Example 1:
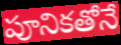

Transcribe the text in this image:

పూనికతోనే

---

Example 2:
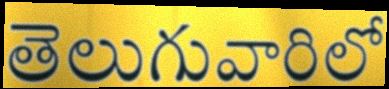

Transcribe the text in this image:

తెలుగువారిలో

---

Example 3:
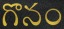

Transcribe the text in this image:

గొనం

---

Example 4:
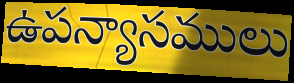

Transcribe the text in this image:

ఉపన్యాసములు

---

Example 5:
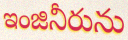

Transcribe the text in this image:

ఇంజినీరును